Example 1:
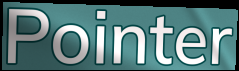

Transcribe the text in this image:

Pointer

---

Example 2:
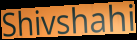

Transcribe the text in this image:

Shivshahi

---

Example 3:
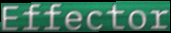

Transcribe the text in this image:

Effector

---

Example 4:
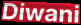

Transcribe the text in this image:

Diwani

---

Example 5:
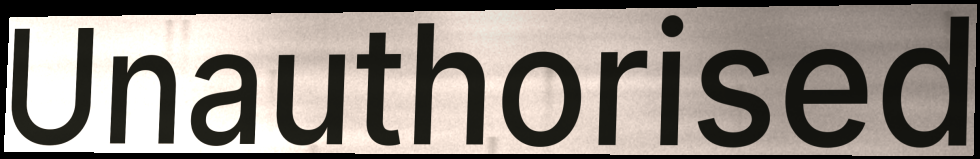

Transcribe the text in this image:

Unauthorised